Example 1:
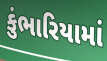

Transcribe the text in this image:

કુંભારિયામાં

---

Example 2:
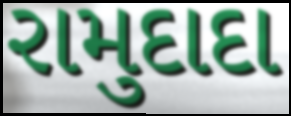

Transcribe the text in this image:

રામુદાદા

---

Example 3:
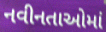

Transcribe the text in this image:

નવીનતાઓમાં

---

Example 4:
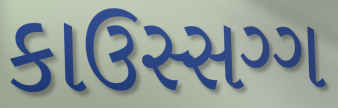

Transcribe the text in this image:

કાઉસ્સગ્ગ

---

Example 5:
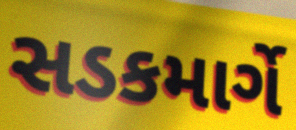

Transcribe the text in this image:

સડકમાર્ગે